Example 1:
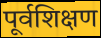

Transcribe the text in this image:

पूर्वशिक्षण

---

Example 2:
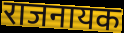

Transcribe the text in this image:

राजनायक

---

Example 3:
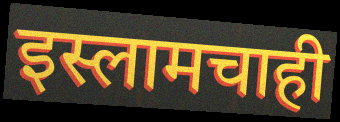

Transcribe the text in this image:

इस्लामचाही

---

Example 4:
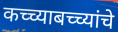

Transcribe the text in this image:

कच्च्याबच्च्यांचे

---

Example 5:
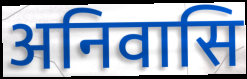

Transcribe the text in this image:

अनिवासि